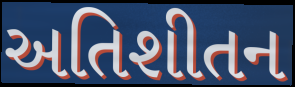
અતિશીતન